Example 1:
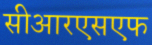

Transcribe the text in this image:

सीआरएसएफ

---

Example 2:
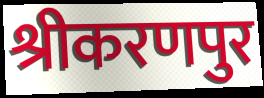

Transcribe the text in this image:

श्रीकरणपुर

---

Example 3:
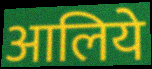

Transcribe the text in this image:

आलिये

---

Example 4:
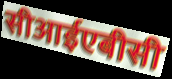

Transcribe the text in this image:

सीआईएबीसी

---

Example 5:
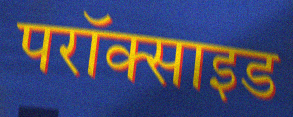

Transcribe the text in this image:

परॉक्साइड